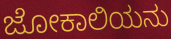
ಜೋಕಾಲಿಯನು